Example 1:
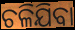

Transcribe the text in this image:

ଚଳିଯିବା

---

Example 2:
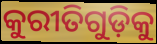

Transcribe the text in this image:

କୁରୀତିଗୁଡ଼ିକୁ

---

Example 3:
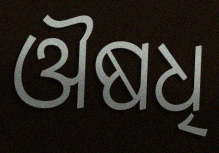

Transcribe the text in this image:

ଔଷଧି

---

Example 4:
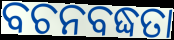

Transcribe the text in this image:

ବଚନବଦ୍ଧତା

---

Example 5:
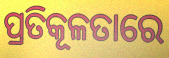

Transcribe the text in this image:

ପ୍ରତିକୂଳତାରେ